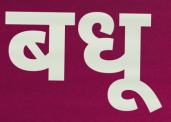
बधू